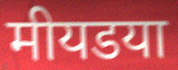
मीयडया